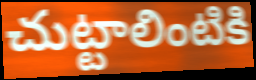
చుట్టాలింటికి